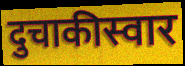
दुचाकीस्वार